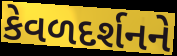
કેવળદર્શનને